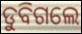
ଡୁବିଗଲେ